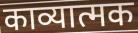
काव्यात्मक